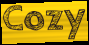
Cozy